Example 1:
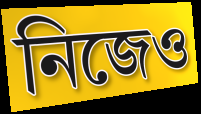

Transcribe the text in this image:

নিজেও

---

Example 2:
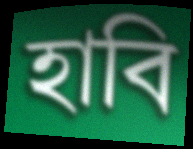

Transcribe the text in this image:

হাবি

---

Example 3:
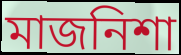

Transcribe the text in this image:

মাজনিশা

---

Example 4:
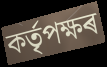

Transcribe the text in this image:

কৰ্তৃপক্ষৰ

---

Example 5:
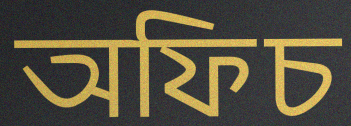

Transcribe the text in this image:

অফিচ